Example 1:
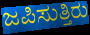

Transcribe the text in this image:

ಜಪಿಸುತ್ತಿರು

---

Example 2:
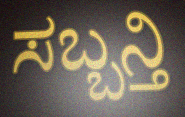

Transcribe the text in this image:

ಸಬ್ಬನ್ತಿ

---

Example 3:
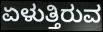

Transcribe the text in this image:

ಏಳುತ್ತಿರುವ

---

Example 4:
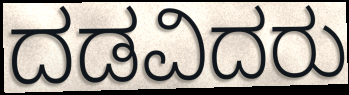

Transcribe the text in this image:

ದಡವಿದರು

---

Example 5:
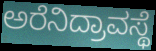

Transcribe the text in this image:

ಅರೆನಿದ್ರಾವಸ್ಥೆ